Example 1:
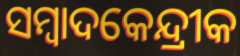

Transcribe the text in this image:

ସମ୍ୱାଦକେନ୍ଦ୍ରୀକ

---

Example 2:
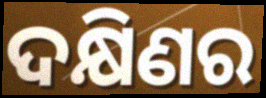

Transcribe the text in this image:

ଦକ୍ଷିଣର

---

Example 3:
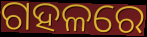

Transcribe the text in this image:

ଗହଳରେ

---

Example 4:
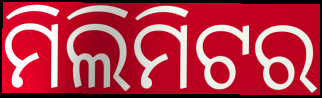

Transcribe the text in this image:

ମିଲିମିଟର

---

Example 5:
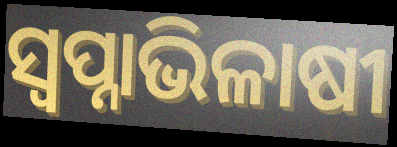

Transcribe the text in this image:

ସ୍ଵପ୍ନାଭିଳାଷୀ